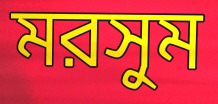
মরসুম